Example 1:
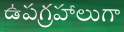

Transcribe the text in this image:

ఉపగ్రహాలుగా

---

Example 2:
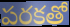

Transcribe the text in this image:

పరకతో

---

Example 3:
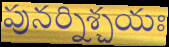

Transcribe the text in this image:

పునర్నిశ్చయః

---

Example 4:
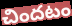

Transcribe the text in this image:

చిందటం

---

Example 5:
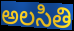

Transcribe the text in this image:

అలసితి